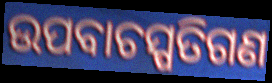
ଉପବାଚସ୍ପତିଗଣ